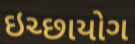
ઇચ્છાયોગ